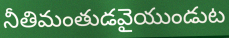
నీతిమంతుడవైయుండుట